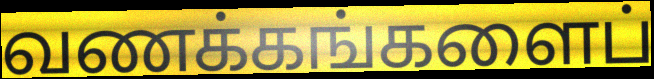
வணக்கங்களைப்